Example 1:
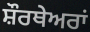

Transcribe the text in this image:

ਸ਼ੌਰਥੇਅਰਾਂ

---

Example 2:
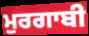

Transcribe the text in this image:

ਮੁਰਗਾਬੀ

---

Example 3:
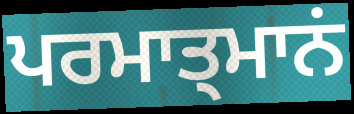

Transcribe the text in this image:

ਪਰਮਾਤ੍ਮਾਨਂ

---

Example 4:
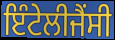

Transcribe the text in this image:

ਇੰਟੇਲੀਜੈਂਸੀ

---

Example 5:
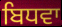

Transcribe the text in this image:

ਬਿਧਵਾ